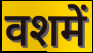
वशमें